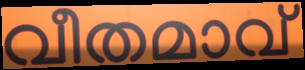
വീതമാവ്